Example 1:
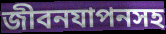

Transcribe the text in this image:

জীবনযাপনসহ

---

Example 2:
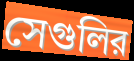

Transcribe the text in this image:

সেগুলির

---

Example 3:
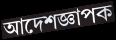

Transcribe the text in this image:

আদেশজ্ঞাপক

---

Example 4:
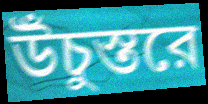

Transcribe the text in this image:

উঁচুস্তরে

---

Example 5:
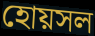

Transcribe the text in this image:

হোয়সল